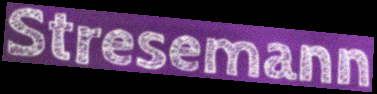
Stresemann